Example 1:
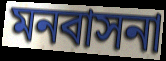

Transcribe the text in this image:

মনবাসনা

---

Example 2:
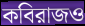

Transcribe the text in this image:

কবিরাজও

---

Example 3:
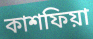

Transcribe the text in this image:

কাশফিয়া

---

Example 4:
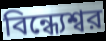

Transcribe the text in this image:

বিন্ধ্যেশ্বর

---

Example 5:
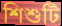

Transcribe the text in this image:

শিশুটি